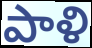
పాళి